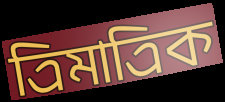
ত্রিমাত্রিক